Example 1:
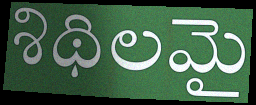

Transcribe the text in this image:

శిథిలమై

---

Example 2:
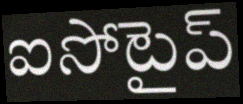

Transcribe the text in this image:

ఐసోటైప్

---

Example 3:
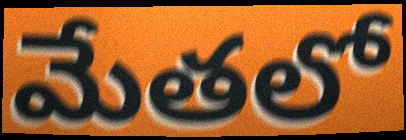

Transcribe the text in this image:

మేతలో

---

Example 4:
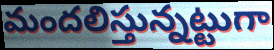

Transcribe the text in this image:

మందలిస్తున్నట్టుగా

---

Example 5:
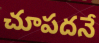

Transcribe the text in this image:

చూపదనే